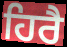
ਹਿਰੈ